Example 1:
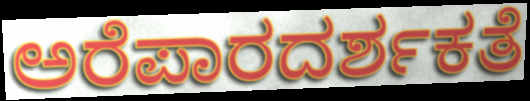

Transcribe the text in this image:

ಅರೆಪಾರದರ್ಶಕತೆ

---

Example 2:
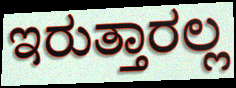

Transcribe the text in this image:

ಇರುತ್ತಾರಲ್ಲ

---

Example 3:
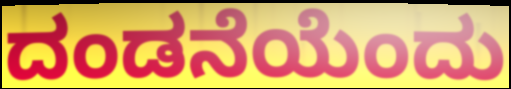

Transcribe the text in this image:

ದಂಡನೆಯೆಂದು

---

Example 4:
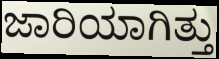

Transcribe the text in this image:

ಜಾರಿಯಾಗಿತ್ತು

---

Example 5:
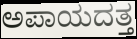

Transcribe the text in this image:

ಅಪಾಯದತ್ತ